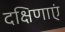
दक्षिणाएं